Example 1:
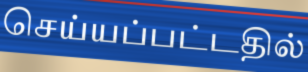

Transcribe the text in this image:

செய்யப்பட்டதில்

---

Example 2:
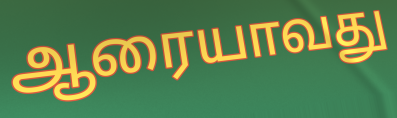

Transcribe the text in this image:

ஆரையாவது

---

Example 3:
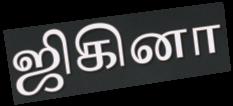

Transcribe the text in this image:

ஜிகினா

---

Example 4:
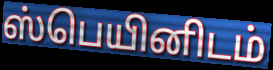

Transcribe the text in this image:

ஸ்பெயினிடம்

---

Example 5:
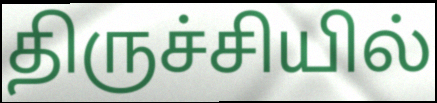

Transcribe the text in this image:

திருச்சியில்